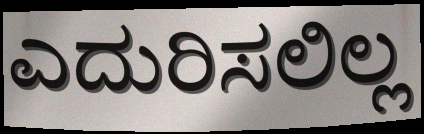
ಎದುರಿಸಲಿಲ್ಲ